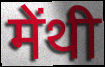
मेंथी